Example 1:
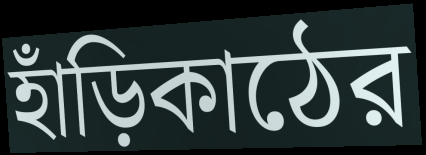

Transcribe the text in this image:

হাঁড়িকাঠের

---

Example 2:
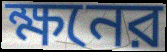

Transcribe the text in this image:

ক্ষনের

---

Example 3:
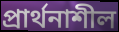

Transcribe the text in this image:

প্রার্থনাশীল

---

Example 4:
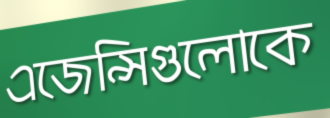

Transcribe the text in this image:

এজেন্সিগুলোকে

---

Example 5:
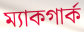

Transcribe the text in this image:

ম্যাকগার্ক